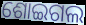
ଶୋଇଗଲ